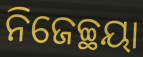
ନିଜେଚ୍ଛୟା